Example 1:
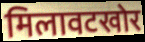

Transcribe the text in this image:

मिलावटखोर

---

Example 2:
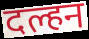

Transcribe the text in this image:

दल्हन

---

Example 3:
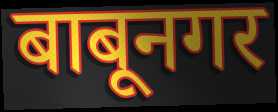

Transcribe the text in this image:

बाबूनगर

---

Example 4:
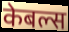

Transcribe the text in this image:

केबल्स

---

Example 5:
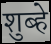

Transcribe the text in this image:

शुब्हे